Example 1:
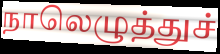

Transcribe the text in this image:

நாலெழுத்துச்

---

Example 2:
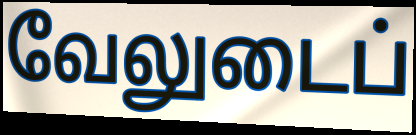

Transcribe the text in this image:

வேலுடைப்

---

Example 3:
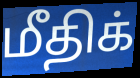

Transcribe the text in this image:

மீதிக்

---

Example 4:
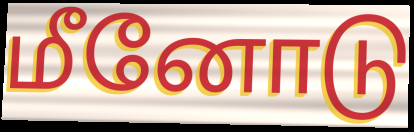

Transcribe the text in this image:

மீனோடு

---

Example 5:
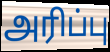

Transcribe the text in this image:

அரிப்பு